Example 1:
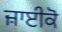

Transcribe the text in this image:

ਜ਼ਾਈਕੋ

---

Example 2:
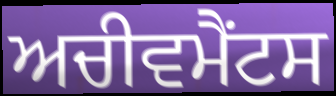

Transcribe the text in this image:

ਅਚੀਵਮੈਂਟਸ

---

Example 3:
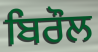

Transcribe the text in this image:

ਬਿਰੌਲ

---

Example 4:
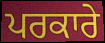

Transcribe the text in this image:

ਪਰਕਾਰੇ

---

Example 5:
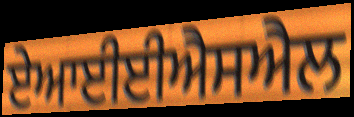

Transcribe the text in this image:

ਏਆਈਈਐਸਐਲ